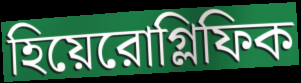
হিয়েরোগ্লিফিক